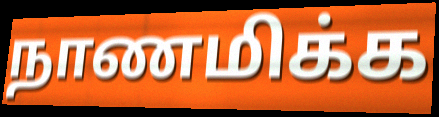
நாணமிக்க